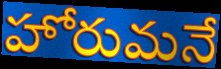
హోరుమనే